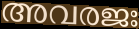
അവരജഃ